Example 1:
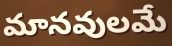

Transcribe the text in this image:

మానవులమే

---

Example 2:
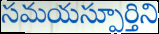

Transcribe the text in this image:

సమయస్పూర్తిని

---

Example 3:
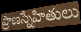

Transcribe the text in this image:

ప్రాణస్నేహితులు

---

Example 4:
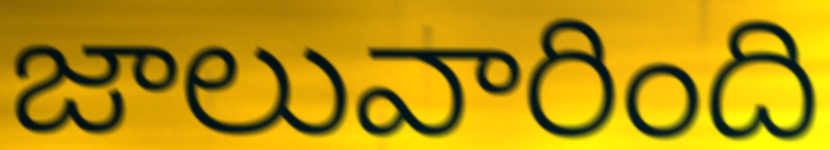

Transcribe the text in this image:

జాలువారింది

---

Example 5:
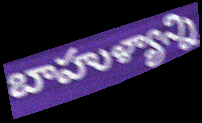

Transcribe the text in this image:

బాహుళ్యాన్ని